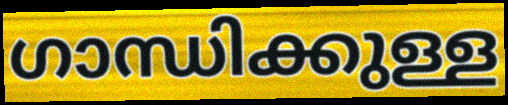
ഗാന്ധിക്കുള്ള